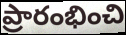
ప్రారంభించి